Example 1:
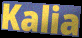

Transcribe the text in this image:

Kalia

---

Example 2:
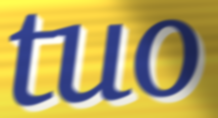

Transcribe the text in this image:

tuo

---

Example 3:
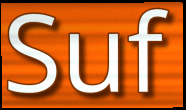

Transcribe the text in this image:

Suf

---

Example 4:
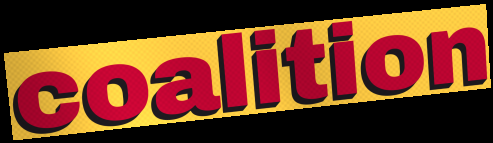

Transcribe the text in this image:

coalition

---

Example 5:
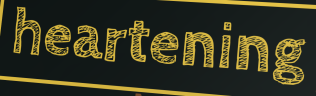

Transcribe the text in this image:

heartening